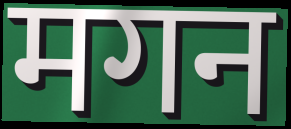
मगन